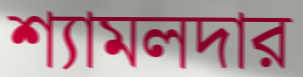
শ্যামলদার